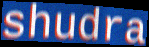
shudra